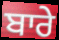
ਬਾਰੇ